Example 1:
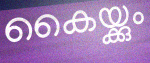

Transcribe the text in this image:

കൈയ്ക്കും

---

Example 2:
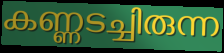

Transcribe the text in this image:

കണ്ണടച്ചിരുന്ന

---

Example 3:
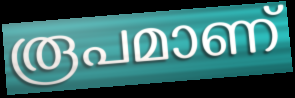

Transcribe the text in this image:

രൂപമാണ്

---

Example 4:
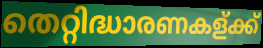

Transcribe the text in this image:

തെറ്റിദ്ധാരണകള്ക്ക്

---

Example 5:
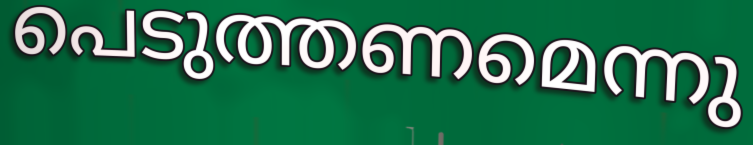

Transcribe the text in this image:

പെടുത്തണമെന്നു